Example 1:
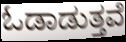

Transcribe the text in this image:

ಓಡಾಡುತ್ತವೆ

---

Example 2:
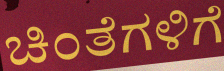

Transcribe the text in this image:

ಚಿಂತೆಗಳಿಗೆ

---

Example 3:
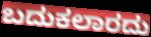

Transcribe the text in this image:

ಬದುಕಲಾರದು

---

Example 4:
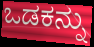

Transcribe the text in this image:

ಒಡಕನ್ನು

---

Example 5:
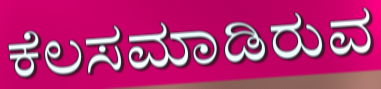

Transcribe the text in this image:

ಕೆಲಸಮಾಡಿರುವ